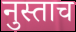
नुस्ताच